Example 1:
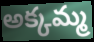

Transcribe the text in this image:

అక్కమ్మ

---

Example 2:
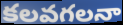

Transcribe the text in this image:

కలవగలనా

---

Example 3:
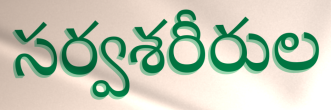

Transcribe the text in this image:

సర్వశరీరుల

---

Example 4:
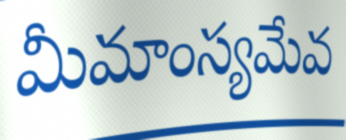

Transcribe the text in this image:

మీమాంస్యమేవ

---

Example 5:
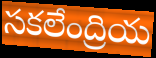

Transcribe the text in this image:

సకలేంద్రియ